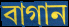
বাগান